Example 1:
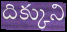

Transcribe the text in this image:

దిక్కుని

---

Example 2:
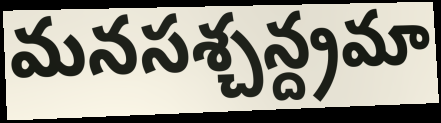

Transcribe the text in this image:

మనసశ్చన్ద్రమా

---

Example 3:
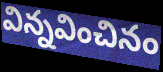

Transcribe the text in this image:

విన్నవించినం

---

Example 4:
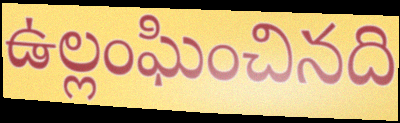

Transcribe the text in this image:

ఉల్లంఘించినది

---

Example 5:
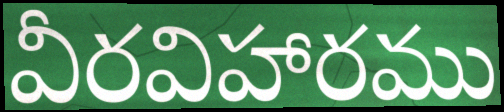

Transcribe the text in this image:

వీరవిహారము